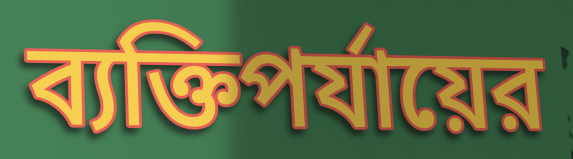
ব্যক্তিপর্যায়ের